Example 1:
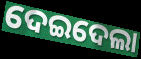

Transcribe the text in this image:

ଦେଇଦେଲା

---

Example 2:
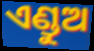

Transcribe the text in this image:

ଏଣ୍ଡୁଅ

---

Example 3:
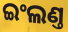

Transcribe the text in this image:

ଇଂଲଣ୍ତ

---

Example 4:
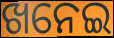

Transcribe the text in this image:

ଖନେଇ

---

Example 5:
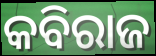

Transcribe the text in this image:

କବିରାଜ